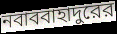
নবাববাহাদুরের